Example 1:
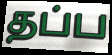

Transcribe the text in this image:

தப்ப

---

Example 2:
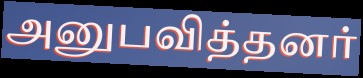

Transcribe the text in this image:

அனுபவித்தனர்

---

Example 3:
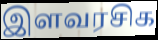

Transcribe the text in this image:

இளவரசிக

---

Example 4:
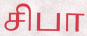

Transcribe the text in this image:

சிபா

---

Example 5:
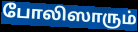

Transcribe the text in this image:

போலிஸாரும்